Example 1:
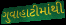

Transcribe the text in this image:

ગુવાહાટીમાંથી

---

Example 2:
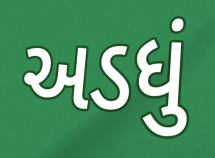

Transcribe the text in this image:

અડધું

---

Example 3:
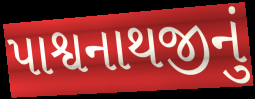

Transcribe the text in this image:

પાશ્વનાથજીનું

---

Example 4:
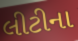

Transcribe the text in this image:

લીટીના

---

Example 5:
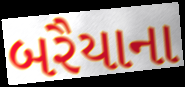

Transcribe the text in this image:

બરૈયાના